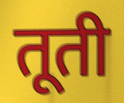
तूती